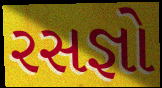
રસજ્ઞો